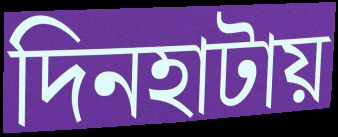
দিনহাটায়